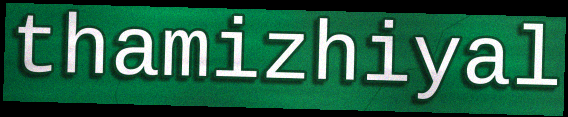
thamizhiyal